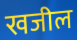
खजील